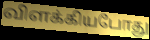
விளக்கியபோது